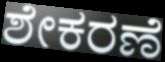
ಶೇಕರಣೆ